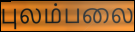
புலம்பலை